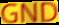
GND